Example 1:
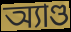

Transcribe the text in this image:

অ্যাণ্ড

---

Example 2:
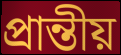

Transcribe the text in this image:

প্ৰান্তীয়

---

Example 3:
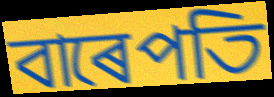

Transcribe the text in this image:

বাৰেপতি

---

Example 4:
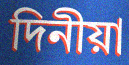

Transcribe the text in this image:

দিনীয়া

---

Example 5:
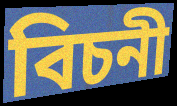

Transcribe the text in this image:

বিচনী